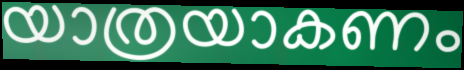
യാത്രയാകണം